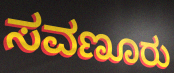
ಸವಣೂರು